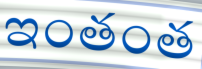
ఇంతంత